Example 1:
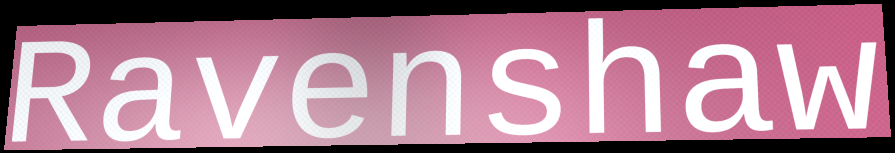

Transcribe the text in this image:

Ravenshaw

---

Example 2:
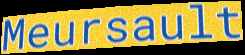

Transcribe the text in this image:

Meursault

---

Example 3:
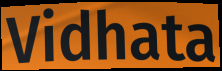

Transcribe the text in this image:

Vidhata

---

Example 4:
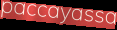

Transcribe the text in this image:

paccayassa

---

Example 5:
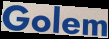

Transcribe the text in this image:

Golem